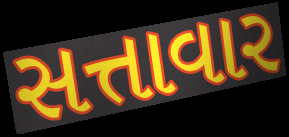
સત્તાવાર